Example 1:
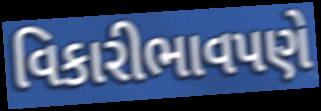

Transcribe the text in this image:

વિકારીભાવપણે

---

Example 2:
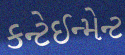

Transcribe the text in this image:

કન્ટેઈન્મેન્ટ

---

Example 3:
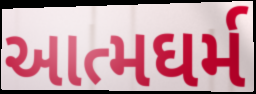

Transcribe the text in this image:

આત્મઘર્મ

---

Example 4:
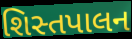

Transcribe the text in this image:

શિસ્તપાલન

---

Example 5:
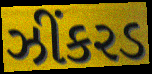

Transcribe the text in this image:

ઝીંકરડ